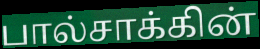
பால்சாக்கின்